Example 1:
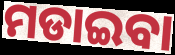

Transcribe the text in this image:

ମଡାଇବା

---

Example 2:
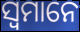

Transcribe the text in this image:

ସ୍ୱମାନେ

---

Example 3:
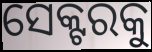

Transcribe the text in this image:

ସେକ୍ଟରକୁ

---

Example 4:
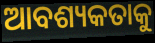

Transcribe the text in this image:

ଆବଶ୍ୟକତାକୁ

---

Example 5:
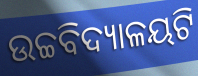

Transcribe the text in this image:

ଉଚ୍ଚବିଦ୍ୟାଳୟଟି